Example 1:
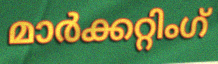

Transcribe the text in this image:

മാർക്കറ്റിംഗ്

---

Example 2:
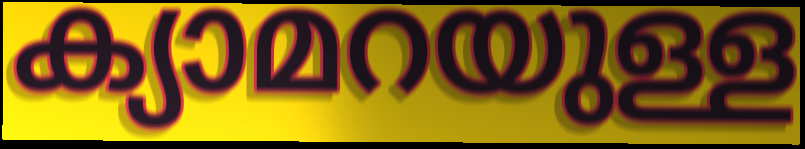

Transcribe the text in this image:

ക്യാമറയുള്ള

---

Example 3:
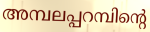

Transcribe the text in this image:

അമ്പലപ്പറമ്പിന്റെ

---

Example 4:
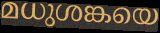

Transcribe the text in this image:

മധുശങ്കയെ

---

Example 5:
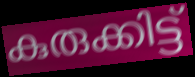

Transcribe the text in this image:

കുരുക്കിട്ട്